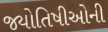
જ્યોતિષીઓની